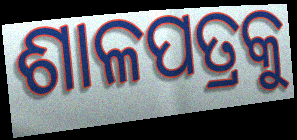
ଶାଳପତ୍ରକୁ